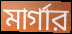
মার্গার